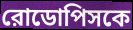
রোডোপিসকে